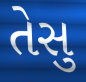
તેસુ